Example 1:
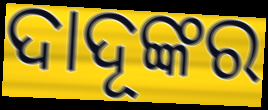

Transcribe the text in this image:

ଦାଦୂଙ୍କର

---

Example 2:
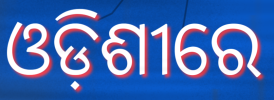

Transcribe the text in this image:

ଓଡ଼ିଶୀରେ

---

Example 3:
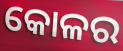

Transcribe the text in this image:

କୋଳର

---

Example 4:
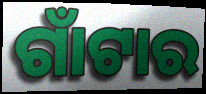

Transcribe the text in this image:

ଗାଁଟାର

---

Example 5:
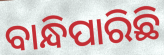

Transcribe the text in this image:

ବାନ୍ଧିପାରିଛି